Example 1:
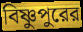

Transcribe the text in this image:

বিষ্ণুপুরের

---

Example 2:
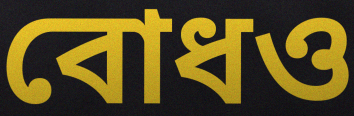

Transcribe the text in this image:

বোধও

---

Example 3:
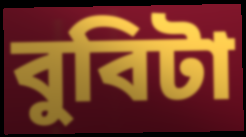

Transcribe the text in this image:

বুবিটা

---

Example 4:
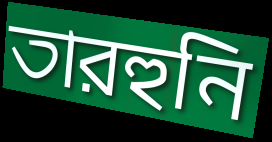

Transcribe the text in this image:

তারহুনি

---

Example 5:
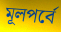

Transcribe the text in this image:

মূলপর্বে